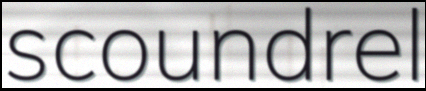
scoundrel